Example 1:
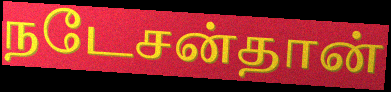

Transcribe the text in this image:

நடேசன்தான்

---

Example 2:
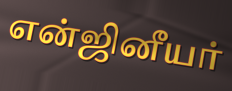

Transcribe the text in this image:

என்ஜினீயர்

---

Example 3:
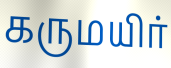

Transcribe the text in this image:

கருமயிர்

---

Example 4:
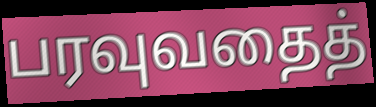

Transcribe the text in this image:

பரவுவதைத்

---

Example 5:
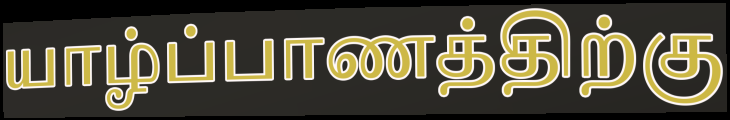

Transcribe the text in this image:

யாழ்ப்பாணத்திற்கு